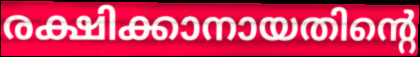
രക്ഷിക്കാനായതിന്റെ